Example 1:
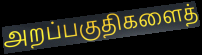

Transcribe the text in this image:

அறப்பகுதிகளைத்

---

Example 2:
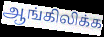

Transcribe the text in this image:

ஆங்கிலிக்க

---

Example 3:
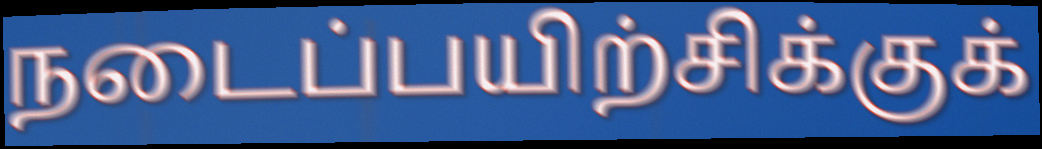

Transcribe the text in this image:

நடைப்பயிற்சிக்குக்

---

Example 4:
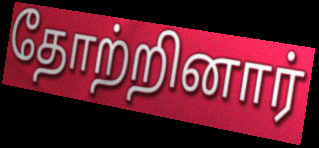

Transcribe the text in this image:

தோற்றினார்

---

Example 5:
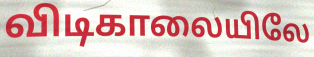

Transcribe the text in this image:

விடிகாலையிலே